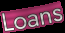
Loans